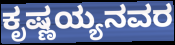
ಕೃಷ್ಣಯ್ಯನವರ